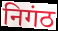
निगंठ